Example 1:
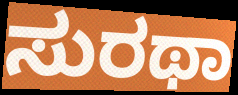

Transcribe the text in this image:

ಸುರಥಾ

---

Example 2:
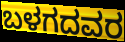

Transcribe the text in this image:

ಬಳಗದವರ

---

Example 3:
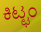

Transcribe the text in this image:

ಕಿಟ್ಟಂ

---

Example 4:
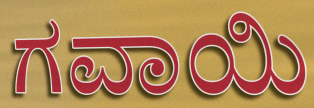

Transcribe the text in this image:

ಗವಾಯಿ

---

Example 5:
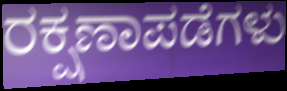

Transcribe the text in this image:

ರಕ್ಷಣಾಪಡೆಗಳು